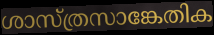
ശാസ്ത്രസാങ്കേതിക